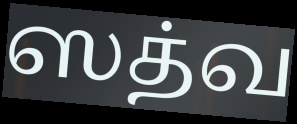
ஸத்வ